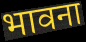
भावना